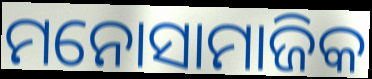
ମନୋସାମାଜିକ